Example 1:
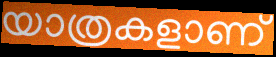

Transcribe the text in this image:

യാത്രകളാണ്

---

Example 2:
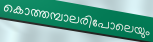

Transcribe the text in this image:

കൊത്തമ്പാലരിപോലെയും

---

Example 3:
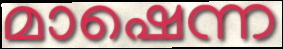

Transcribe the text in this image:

മാഷെന്ന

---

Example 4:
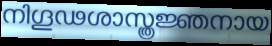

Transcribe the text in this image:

നിഗൂഢശാസ്ത്രജ്ഞനായ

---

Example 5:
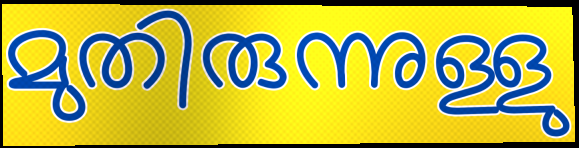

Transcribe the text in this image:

മുതിരുന്നുള്ളു